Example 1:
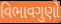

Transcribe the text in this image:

વિભાવગુણો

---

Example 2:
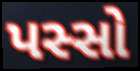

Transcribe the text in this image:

પસ્સો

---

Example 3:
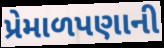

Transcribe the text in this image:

પ્રેમાળપણાની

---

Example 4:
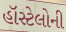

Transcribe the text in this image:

હૉસ્ટેલોની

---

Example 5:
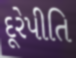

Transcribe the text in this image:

દૂરેપીતિ